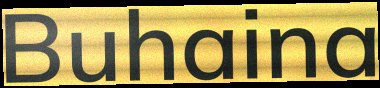
Buhaina